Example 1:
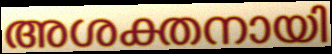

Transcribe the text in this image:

അശക്തനായി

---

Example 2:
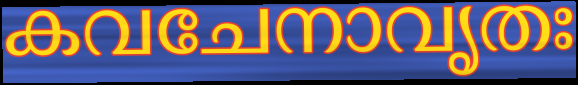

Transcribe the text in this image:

കവചേനാവൃതഃ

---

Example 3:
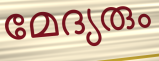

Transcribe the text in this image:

മേദ്യരും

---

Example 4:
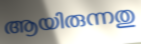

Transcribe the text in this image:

ആയിരുന്നതു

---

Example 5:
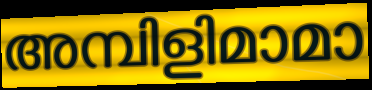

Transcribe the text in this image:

അമ്പിളിമാമാ